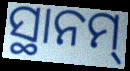
ସ୍ଥାନମ୍